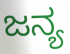
ಜನ್ಯ